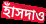
হাঁসদাও